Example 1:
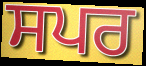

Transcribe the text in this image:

ਸਪਰ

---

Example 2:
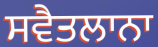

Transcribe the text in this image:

ਸਵੈਤਲਾਨਾ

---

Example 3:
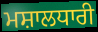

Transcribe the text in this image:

ਮਸ਼ਾਲਧਾਰੀ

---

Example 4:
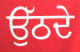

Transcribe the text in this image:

ਉੱਠਦੇ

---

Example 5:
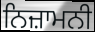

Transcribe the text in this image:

ਨਿਜ਼ਾਮਨੀ